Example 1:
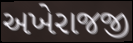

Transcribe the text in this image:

અખેરાજજી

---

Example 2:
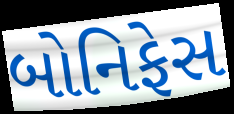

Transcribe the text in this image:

બોનિફેસ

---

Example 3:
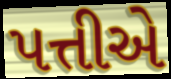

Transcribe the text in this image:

પત્તીએ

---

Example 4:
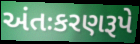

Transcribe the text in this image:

અંતઃકરણરૂપે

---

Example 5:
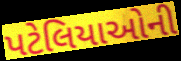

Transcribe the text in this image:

પટેલિયાઓની